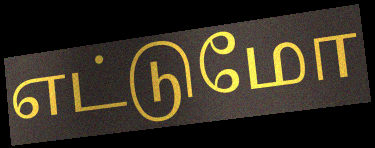
எட்டுமோ